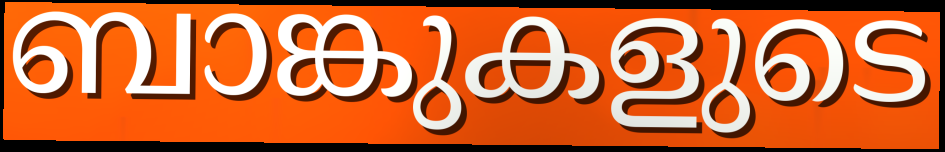
ബാങ്കുകളുടെ